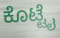
ಕೊಟ್ಟೈ